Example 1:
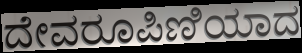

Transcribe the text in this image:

ದೇವರೂಪಿಣಿಯಾದ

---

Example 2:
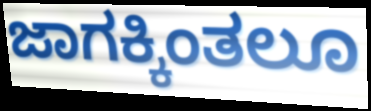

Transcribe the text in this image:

ಜಾಗಕ್ಕಿಂತಲೂ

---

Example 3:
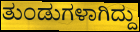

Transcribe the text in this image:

ತುಂಡುಗಳಾಗಿದ್ದು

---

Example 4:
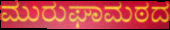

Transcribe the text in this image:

ಮುರುಘಾಮಠದ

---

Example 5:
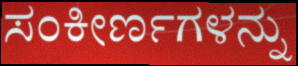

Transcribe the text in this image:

ಸಂಕೀರ್ಣಗಳನ್ನು